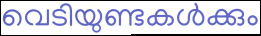
വെടിയുണ്ടകൾക്കും